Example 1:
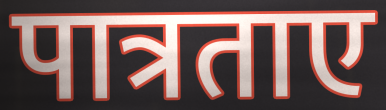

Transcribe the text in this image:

पात्रताए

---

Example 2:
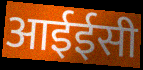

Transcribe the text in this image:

आईईसी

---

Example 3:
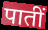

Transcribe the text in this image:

पातीं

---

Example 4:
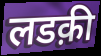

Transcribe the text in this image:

लडक़ी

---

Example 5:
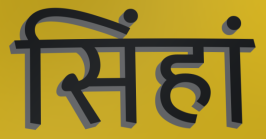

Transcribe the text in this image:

सिंहां